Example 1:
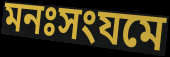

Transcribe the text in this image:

মনঃসংযমে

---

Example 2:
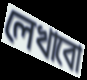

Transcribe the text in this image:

লেখাবো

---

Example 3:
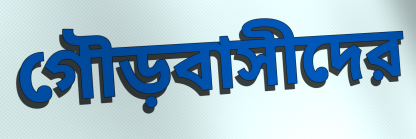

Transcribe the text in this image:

গৌড়বাসীদের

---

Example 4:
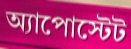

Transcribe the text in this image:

অ্যাপোস্টেট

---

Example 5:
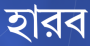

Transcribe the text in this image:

হারব